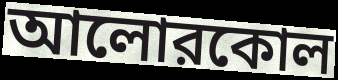
আলোরকোল